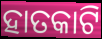
ହାତକାଟି